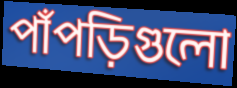
পাঁপড়িগুলো